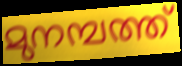
മുനമ്പത്ത്